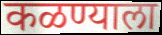
कळण्याला